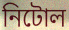
নিটোল